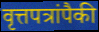
वृत्तपत्रांपैकी